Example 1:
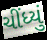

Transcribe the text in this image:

ચીંધ્યું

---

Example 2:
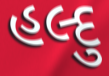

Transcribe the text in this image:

હલ્દુ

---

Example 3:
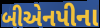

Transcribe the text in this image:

બીએનપીના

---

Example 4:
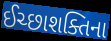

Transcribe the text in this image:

ઈચ્છાશક્તિના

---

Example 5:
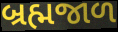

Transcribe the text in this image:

બ્રહ્મજાળ